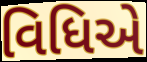
વિધિએ